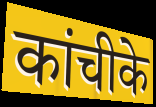
कांचीके